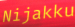
Nijakku